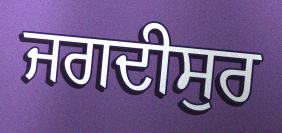
ਜਗਦੀਸੁਰ